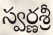
స్వర్ణశ్రీ